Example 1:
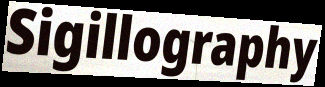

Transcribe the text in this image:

Sigillography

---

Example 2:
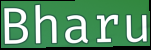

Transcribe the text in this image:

Bharu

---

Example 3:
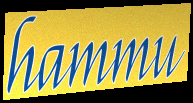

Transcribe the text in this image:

hammu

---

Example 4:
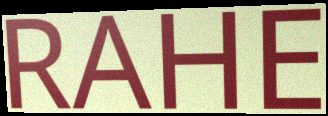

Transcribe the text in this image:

RAHE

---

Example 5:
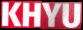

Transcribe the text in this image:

KHYU